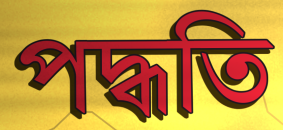
পদ্ধতি